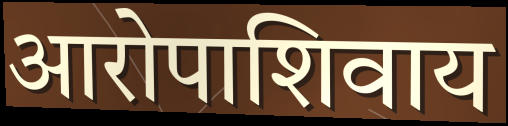
आरोपाशिवाय